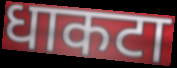
धाकटा